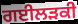
ਗਈਲੜਕੀ